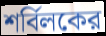
শর্বিলকের